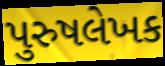
પુરુષલેખક